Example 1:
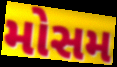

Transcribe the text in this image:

મોસમ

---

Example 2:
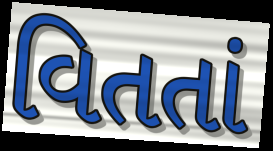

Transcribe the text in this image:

વિતતાં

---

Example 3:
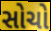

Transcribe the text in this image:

સોચો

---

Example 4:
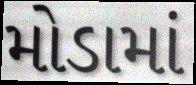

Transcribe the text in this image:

મોડામાં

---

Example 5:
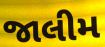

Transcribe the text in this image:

જાલીમ